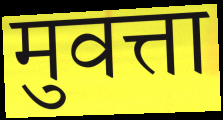
मुवत्ता